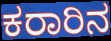
ಕರಾರಿನ